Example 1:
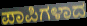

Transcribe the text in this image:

ಪಾಪಿಗಳಾದ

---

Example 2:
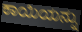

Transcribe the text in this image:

ಕಾಯಿಯನ್ನು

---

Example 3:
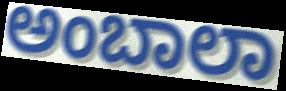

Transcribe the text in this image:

ಅಂಬಾಲಾ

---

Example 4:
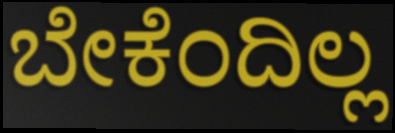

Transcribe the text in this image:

ಬೇಕೆಂದಿಲ್ಲ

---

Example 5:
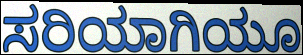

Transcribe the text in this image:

ಸರಿಯಾಗಿಯೂ